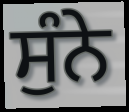
ਸੁੰਨੇ